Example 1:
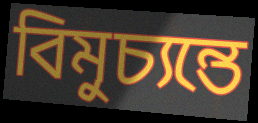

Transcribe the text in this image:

বিমুচ্যন্তে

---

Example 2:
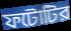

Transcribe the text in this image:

ফটোটির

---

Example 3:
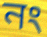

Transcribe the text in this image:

নং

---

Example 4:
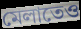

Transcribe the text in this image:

মেলাতেও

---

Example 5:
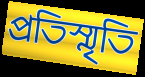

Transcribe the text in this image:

প্রতিস্মৃতি